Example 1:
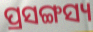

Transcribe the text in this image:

ପ୍ରସଙ୍ଗସ୍ୟ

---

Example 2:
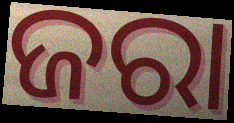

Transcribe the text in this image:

ଜରା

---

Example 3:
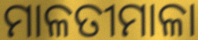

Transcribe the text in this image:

ମାଳତୀମାଳା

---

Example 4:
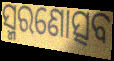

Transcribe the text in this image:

ସ୍ମରଣୋତ୍ସବ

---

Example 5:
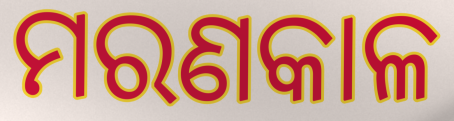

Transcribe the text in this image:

ମରଣକାଳ